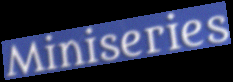
Miniseries